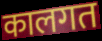
कालगत